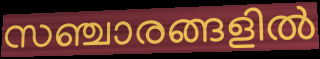
സഞ്ചാരങ്ങളിൽ